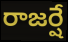
రాజర్షే